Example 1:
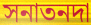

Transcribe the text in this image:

সনাতনদা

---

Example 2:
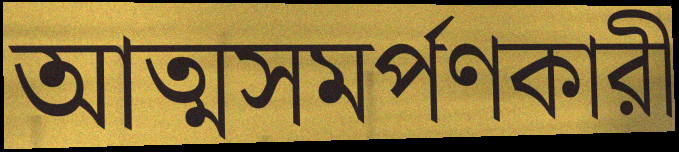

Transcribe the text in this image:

আত্মসমর্পণকারী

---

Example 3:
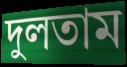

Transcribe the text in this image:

দুলতাম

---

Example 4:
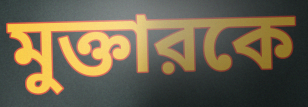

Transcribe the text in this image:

মুক্তারকে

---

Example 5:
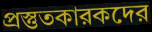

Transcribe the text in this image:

প্রস্তুতকারকদের